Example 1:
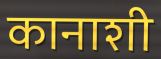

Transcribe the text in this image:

कानाशी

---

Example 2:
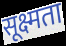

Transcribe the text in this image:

सूक्ष्मता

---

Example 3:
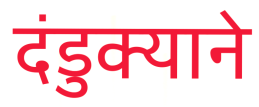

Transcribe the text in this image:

दंडुक्याने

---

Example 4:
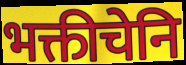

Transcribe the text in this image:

भक्तीचेनि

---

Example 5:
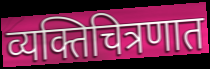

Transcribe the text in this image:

व्यक्तिचित्रणात